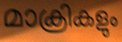
മാക്രികളും